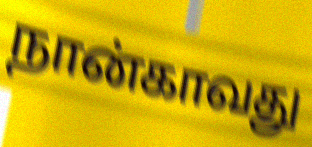
நான்காவது